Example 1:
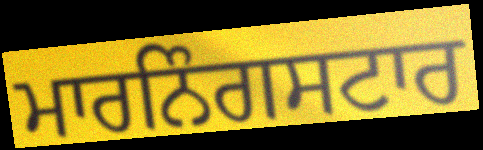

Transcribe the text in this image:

ਮਾਰਨਿੰਗਸਟਾਰ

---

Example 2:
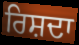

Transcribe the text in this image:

ਰਿਸ਼ਦਾ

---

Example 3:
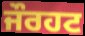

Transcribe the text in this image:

ਜੌਰਹਟ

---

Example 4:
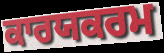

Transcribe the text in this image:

ਕਾਰਯਕਰਮ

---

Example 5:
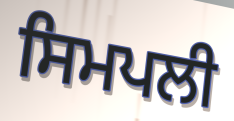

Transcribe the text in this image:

ਸਿਮਪਲੀ